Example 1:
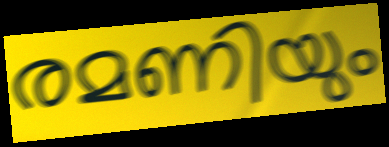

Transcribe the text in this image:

രമണിയും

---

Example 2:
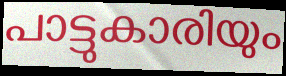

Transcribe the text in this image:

പാട്ടുകാരിയും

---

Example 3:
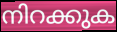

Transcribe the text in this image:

നിറക്കുക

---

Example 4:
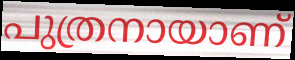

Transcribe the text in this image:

പുത്രനായാണ്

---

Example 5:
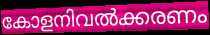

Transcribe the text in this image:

കോളനിവൽക്കരണം